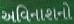
અવિનાશનો